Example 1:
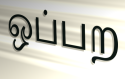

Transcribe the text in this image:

ஒப்பற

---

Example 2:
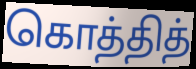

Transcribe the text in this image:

கொத்தித்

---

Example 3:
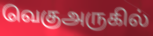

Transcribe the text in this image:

வெகுஅருகில்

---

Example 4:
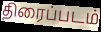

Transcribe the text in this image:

திரைப்படம்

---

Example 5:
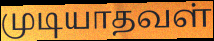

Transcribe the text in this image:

முடியாதவள்